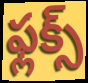
ఫ్లక్స్